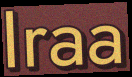
Iraa